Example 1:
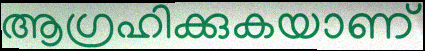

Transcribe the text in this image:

ആഗ്രഹിക്കുകയാണ്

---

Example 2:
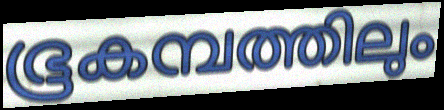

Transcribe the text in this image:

ഭൂകമ്പത്തിലും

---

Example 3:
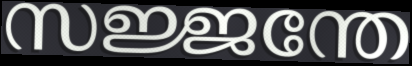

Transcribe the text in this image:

സജ്ജന്തേ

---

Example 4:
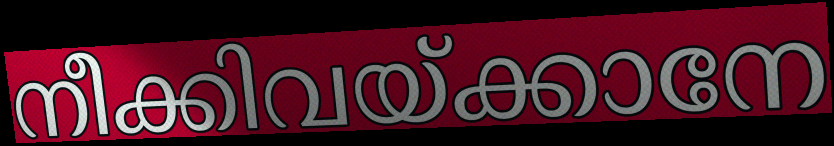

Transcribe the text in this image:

നീക്കിവയ്ക്കാനേ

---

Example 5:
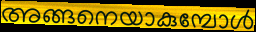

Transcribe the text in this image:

അങ്ങനെയാകുമ്പോൾ